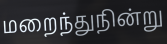
மறைந்துநின்று